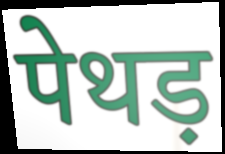
पेथड़